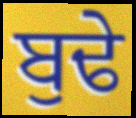
ਬੁਢੇ